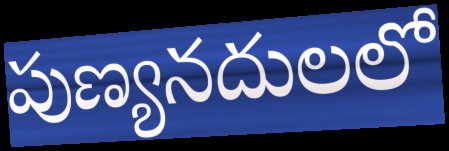
పుణ్యనదులలో